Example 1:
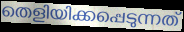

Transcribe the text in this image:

തെളിയിക്കപ്പെടുന്നത്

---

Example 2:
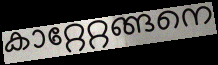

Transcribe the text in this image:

കാറ്റേറ്റങ്ങനെ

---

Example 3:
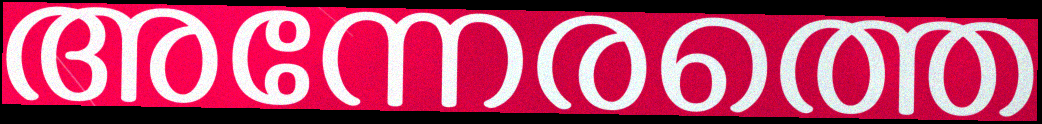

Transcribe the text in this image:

അന്നേരത്തെ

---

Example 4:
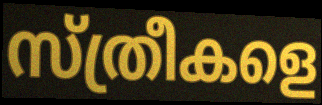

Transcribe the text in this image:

സ്ത്രീകളെ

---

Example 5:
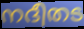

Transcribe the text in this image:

നദീതട